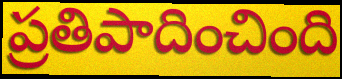
ప్రతిపాదించింది